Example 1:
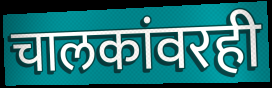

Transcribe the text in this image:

चालकांवरही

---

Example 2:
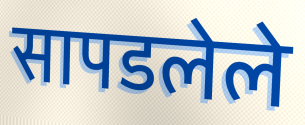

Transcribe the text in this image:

सापडलेले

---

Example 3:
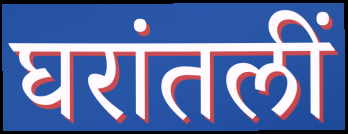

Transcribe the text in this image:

घरांतलीं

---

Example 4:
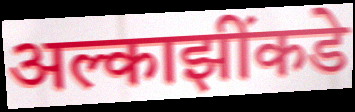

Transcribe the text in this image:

अल्काझींकडे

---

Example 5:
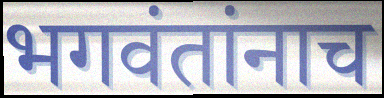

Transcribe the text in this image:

भगवंतांनाच